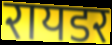
रायडर